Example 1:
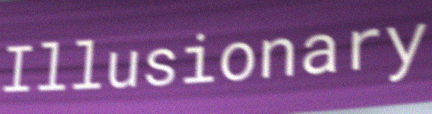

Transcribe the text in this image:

Illusionary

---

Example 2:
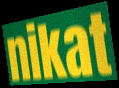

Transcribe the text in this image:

nikat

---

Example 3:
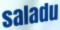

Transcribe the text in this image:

saladu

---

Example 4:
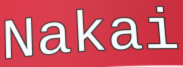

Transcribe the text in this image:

Nakai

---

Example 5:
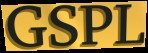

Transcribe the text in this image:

GSPL